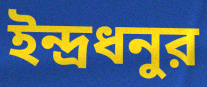
ইন্দ্রধনুর